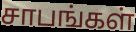
சாபங்கள்